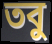
তবু